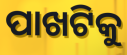
ପାଖଟିକୁ